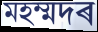
মহম্মদৰ